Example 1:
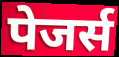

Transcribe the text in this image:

पेजर्स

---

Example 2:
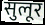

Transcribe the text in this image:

सुलूर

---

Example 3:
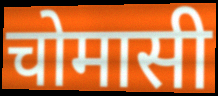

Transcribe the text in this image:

चोमासी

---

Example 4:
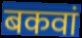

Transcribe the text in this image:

बकवां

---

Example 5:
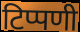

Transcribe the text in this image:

टिप्‍पणी